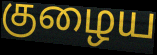
குழைய